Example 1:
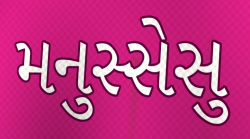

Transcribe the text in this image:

મનુસ્સેસુ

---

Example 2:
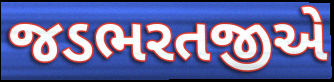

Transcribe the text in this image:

જડભરતજીએ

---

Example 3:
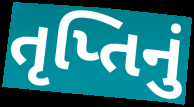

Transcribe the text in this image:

તૃપ્તિનું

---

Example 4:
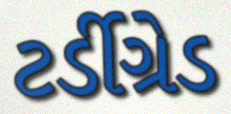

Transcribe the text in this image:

ટર્ડીગ્રેડ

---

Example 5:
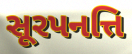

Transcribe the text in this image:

સૂરપનત્તિ